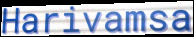
Harivamsa